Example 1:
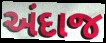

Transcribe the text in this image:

અંદાજ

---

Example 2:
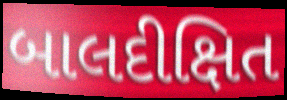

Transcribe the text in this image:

બાલદીક્ષિત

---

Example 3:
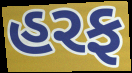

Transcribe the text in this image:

હરફ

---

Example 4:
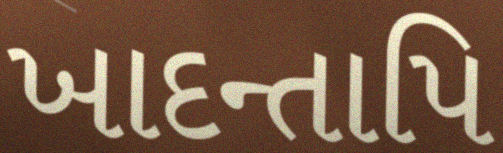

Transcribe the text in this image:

ખાદન્તાપિ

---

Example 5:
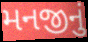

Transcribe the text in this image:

મનજીનું